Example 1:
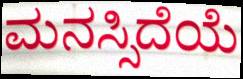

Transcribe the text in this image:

ಮನಸ್ಸಿದೆಯೆ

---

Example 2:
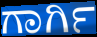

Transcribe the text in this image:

ಗಾರ್ಗಿ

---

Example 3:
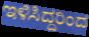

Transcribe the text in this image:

ಇಳಿಸಿದ್ದರಿಂದ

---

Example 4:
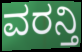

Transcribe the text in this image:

ವರನ್ತಿ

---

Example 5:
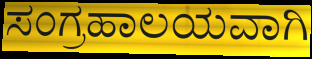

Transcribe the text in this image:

ಸಂಗ್ರಹಾಲಯವಾಗಿ